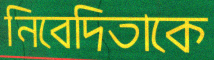
নিবেদিতাকে